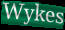
Wykes